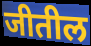
जीतील